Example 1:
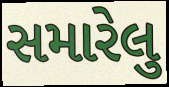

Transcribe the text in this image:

સમારેલુ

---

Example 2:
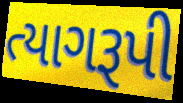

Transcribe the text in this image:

ત્યાગરૂપી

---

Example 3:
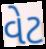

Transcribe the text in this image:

વેટ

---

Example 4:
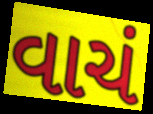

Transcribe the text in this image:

વાચં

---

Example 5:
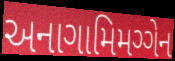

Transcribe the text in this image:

અનાગામિમગ્ગેન